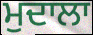
ਮੁਦਾਲਾ